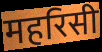
महरिसी